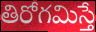
తిరోగమిస్తే